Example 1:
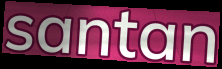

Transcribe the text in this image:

santan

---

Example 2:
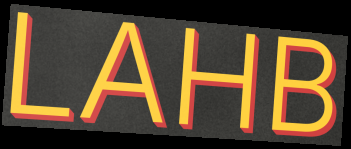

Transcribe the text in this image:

LAHB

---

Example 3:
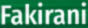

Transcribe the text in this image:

Fakirani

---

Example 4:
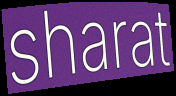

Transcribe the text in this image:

sharat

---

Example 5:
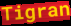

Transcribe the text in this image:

Tigran